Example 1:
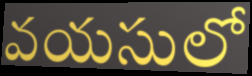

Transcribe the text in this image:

వయసులో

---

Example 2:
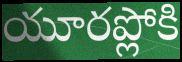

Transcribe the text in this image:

యూరప్లోకి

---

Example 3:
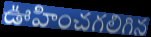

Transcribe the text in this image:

ఊహించగలిగిన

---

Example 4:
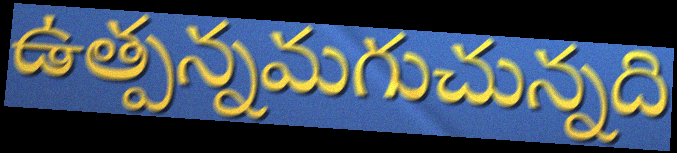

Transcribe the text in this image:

ఉత్పన్నమగుచున్నది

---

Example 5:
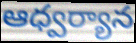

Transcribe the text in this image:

ఆధ్వర్యాన